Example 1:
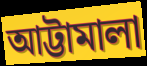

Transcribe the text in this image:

আট্টামালা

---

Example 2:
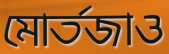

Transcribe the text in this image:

মোর্তজাও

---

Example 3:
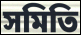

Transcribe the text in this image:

সমিতি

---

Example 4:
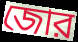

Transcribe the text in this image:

জোর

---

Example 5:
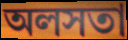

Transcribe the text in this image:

অলসতা